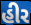
હીર